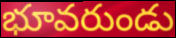
భూవరుండు